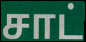
சாட்